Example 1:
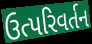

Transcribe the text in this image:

ઉત્પરિવર્તન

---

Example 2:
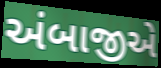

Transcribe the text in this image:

અંબાજીએ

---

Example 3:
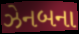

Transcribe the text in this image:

ઝેનબના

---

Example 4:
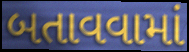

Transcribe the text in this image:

બતાવવામાં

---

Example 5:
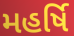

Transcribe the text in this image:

મહર્ષિ